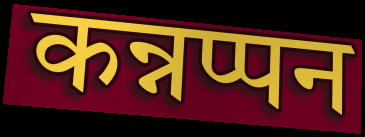
कन्नप्पन